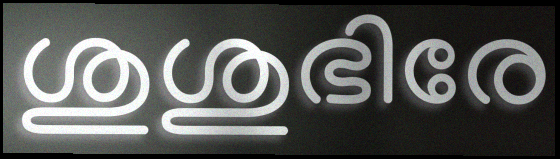
ശുശുഭിരേ